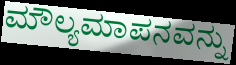
ಮೌಲ್ಯಮಾಪನವನ್ನು